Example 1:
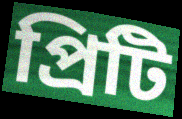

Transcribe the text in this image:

প্রিটি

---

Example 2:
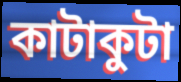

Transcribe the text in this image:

কাটাকুটা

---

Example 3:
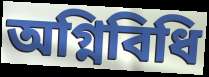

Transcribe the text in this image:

অগ্নিবিধি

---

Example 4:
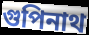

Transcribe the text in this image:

গুপিনাথ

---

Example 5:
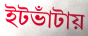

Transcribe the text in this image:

ইটভাঁটায়